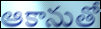
ఆకానుతో